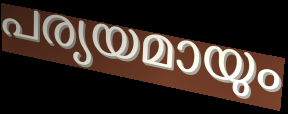
പര്യയമായും